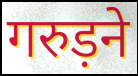
गरुड़ने